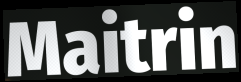
Maitrin